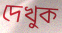
দেখুক